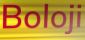
Boloji